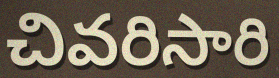
చివరిసారి